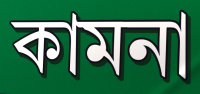
কামনা